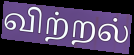
விற்றல்